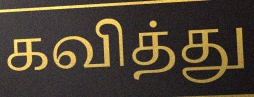
கவித்து